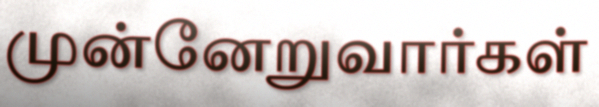
முன்னேறுவார்கள்